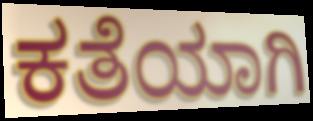
ಕತೆಯಾಗಿ